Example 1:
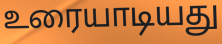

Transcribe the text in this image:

உரையாடியது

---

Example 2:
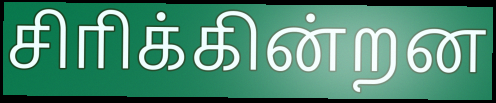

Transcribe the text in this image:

சிரிக்கின்றன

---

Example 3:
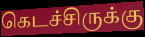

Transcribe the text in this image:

கெடச்சிருக்கு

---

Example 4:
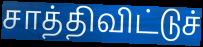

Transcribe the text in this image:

சாத்திவிட்டுச்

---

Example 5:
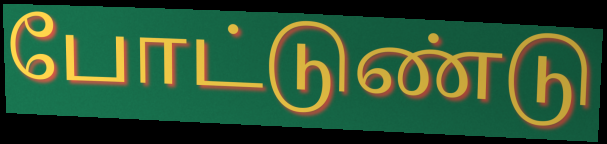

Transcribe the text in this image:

போட்டுண்டு